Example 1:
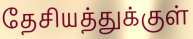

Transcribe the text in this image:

தேசியத்துக்குள்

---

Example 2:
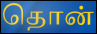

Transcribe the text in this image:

தொன்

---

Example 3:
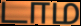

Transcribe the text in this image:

டாம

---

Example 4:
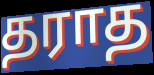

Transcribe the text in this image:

தராத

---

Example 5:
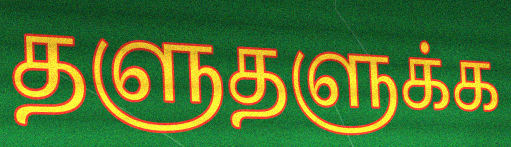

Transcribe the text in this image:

தளுதளுக்க